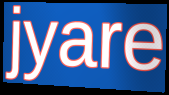
jyare